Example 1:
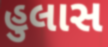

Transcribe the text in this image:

હુલાસ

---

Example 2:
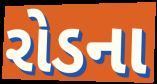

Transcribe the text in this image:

રોડના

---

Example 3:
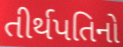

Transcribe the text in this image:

તીર્થપતિનો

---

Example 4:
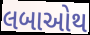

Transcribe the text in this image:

લબાઓથ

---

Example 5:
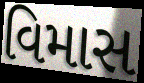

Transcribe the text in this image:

વિમાસ